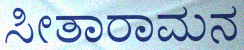
ಸೀತಾರಾಮನ